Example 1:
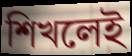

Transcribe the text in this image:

শিখলেই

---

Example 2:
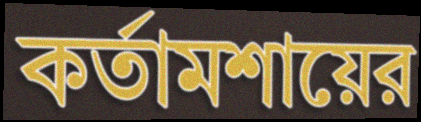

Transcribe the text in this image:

কর্তামশায়ের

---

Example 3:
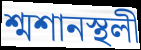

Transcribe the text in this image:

শ্মশানস্থলী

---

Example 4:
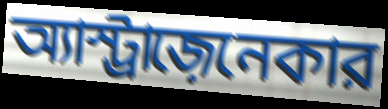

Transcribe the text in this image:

অ্যাস্ট্রাজ়েনেকার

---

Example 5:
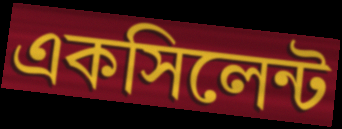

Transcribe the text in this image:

একসিলেন্ট